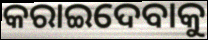
କରାଇଦେବାକୁ